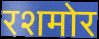
रशमोर